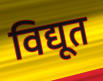
विद्यूत